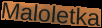
Maloletka